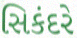
સિકંદરે